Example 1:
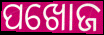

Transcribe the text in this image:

ପଖୋଜ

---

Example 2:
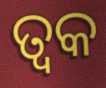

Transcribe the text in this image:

ତ୍ୱକ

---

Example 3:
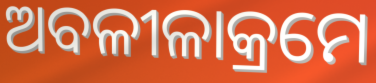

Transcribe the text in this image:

ଅବଳୀଳାକ୍ରମେ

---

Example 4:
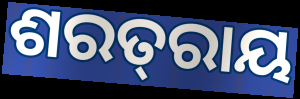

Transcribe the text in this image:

ଶରତ୍‌ରାୟ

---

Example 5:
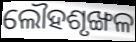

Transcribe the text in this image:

ଲୌହଶୃଙ୍ଖଳ